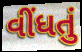
વીંધતું